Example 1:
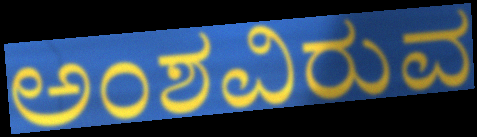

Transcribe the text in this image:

ಅಂಶವಿರುವ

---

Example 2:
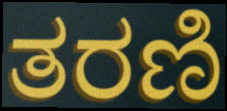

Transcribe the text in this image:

ತರಣಿ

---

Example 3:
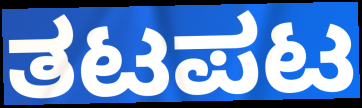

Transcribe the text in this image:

ತಟಪಟ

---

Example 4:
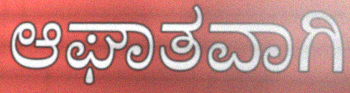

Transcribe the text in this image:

ಆಘಾತವಾಗಿ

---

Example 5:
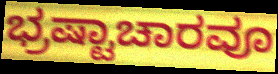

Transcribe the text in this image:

ಭ್ರಷ್ಟಾಚಾರವೂ